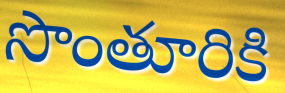
సొంతూరికి